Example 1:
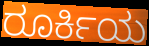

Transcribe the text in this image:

ರೂರ್ಕಿಯ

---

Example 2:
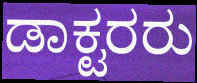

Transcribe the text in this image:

ಡಾಕ್ಟರರು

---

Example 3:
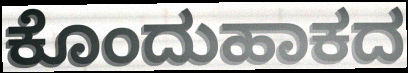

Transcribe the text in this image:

ಕೊಂದುಹಾಕದ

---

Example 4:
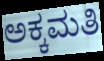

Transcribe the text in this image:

ಅಕ್ಕಮತಿ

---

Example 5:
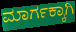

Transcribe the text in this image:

ಮಾರ್ಗಕ್ಕಾಗಿ